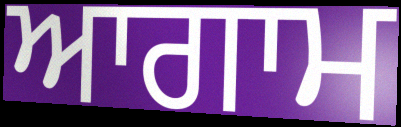
ਆਗਾਮ